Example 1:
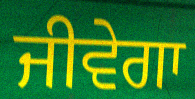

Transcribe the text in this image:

ਜੀਵੇਗਾ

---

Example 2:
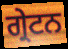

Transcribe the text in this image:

ਗ੍ਰੇਟਨ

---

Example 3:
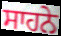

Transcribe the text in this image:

ਸਾਹਨੇ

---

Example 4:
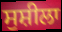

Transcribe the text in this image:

ਸੁਸ਼ੀਲਾ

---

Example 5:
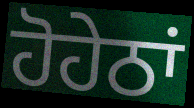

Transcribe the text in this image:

ਹੋਹੇਠਾਂ